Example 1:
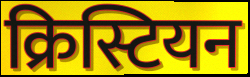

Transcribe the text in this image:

क्रिस्टियन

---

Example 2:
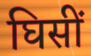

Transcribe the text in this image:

घिसीं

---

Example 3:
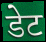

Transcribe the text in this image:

डेट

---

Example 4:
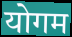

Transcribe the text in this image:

योगम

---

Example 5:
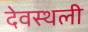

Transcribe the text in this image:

देवस्थली